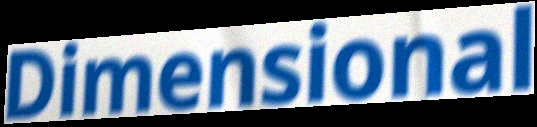
Dimensional